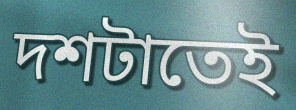
দশটাতেই